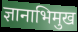
ज्ञानाभिमुख